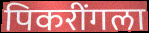
पिकरींगला